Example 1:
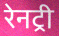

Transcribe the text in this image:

रेनट्री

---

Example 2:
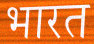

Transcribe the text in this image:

भारत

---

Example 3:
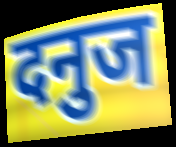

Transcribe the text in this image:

दनुज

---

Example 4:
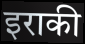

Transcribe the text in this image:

इराकी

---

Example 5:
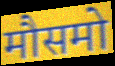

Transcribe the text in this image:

मौसमो